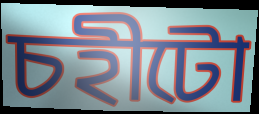
চহীটো